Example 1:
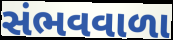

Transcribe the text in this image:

સંભવવાળા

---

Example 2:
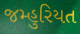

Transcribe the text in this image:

જમ્હુરિયત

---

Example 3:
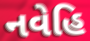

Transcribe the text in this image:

નવેહિ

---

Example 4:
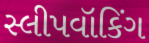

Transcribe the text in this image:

સ્લીપવૉકિંગ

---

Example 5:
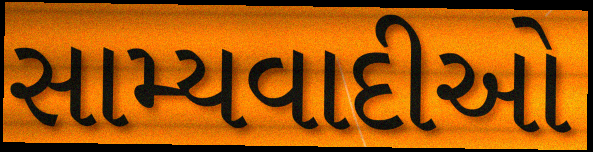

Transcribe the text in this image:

સામ્યવાદીઓ